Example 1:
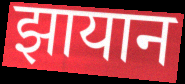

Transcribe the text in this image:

झायान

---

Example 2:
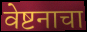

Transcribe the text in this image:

वेष्टनाचा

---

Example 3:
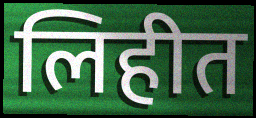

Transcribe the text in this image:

लिहीत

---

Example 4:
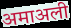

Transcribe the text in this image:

अमाअली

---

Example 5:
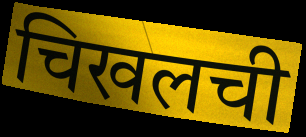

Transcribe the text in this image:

चिखलची